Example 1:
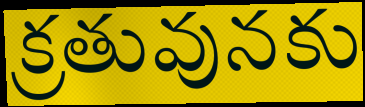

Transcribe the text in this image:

క్రతువునకు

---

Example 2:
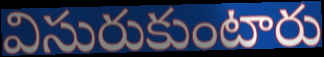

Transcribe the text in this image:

విసురుకుంటారు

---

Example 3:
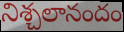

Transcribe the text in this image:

నిశ్చలానందం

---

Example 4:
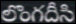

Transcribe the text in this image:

లొంగదీసి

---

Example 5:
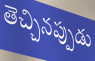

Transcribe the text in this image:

తెచ్చినప్పుడు